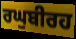
ਰਘੁਬੀਰਹ